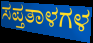
ಸಪ್ತತಾಳಗಳ